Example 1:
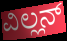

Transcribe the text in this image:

ವಿಲ್ಲನ್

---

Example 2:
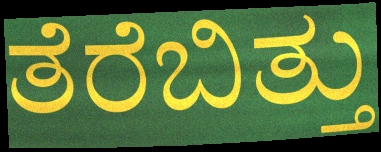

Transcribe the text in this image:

ತೆರೆಬಿತ್ತು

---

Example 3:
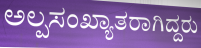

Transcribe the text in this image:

ಅಲ್ಪಸಂಖ್ಯಾತರಾಗಿದ್ದರು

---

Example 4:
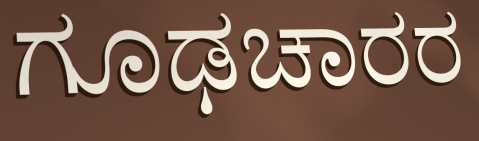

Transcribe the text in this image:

ಗೂಢಚಾರರ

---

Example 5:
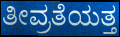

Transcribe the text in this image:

ತೀವ್ರತೆಯತ್ತ